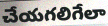
చేయగలిగేలా